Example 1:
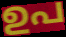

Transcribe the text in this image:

ഉപ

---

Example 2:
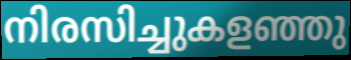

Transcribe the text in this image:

നിരസിച്ചുകളഞ്ഞു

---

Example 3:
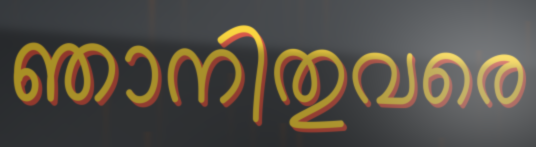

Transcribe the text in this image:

ഞാനിതുവരെ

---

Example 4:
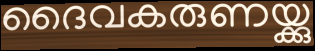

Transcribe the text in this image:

ദൈവകരുണയ്ക്കു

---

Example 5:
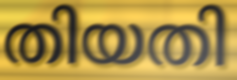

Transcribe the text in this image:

തിയതി